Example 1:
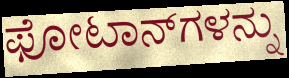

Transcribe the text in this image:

ಫೋಟಾನ್‌ಗಳನ್ನು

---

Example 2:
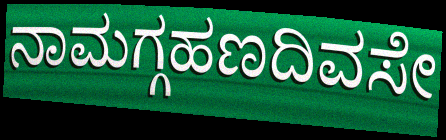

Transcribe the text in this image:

ನಾಮಗ್ಗಹಣದಿವಸೇ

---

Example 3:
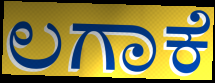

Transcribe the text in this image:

ಲಗಾಕೆ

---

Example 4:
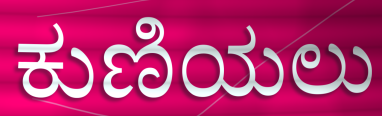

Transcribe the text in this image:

ಕುಣಿಯಲು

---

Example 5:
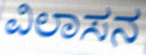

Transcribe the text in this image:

ವಿಲಾಸನ